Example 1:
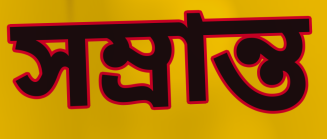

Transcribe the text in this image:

সম্রান্ত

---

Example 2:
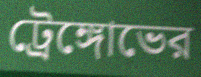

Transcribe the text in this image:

ট্রেঙ্গোভের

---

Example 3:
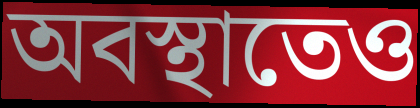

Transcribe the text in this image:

অবস্থাতেও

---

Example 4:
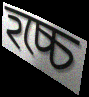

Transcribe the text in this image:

হচ্চে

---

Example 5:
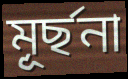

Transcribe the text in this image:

মূর্ছনা